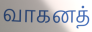
வாகனத்